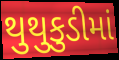
થુથુકુડીમાં